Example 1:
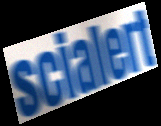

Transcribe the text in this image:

scialert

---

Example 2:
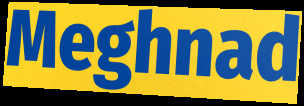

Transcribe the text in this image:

Meghnad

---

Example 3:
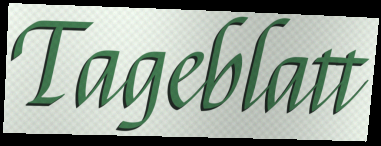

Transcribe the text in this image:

Tageblatt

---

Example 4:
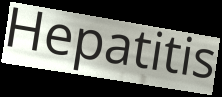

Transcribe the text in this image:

Hepatitis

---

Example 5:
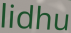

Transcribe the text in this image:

lidhu